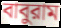
বাবুরাম